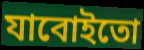
যাবোইতো